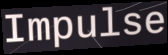
Impulse